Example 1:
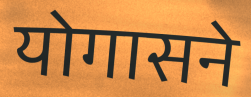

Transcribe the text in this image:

योगासने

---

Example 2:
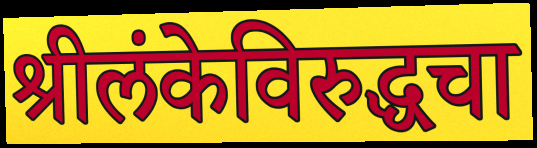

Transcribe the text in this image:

श्रीलंकेविरुद्धचा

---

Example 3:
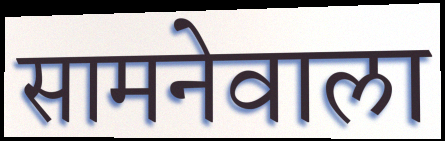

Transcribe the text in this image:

सामनेवाला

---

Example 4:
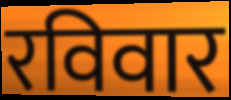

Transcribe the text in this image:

रविवार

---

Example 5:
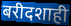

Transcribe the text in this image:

बरीदशाही